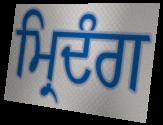
ਮ੍ਰਿਦੰਗ